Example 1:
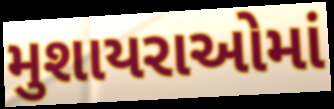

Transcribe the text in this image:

મુશાયરાઓમાં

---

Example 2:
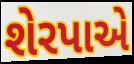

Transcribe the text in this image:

શેરપાએ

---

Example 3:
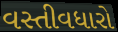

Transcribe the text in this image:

વસ્તીવધારો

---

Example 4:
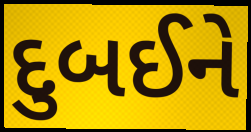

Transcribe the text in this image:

દુબઈને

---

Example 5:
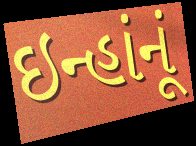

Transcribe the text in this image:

ઇન્હાંનૂં